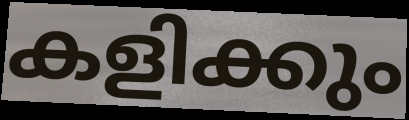
കളിക്കും